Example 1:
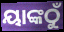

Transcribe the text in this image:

ୟାଙ୍କଠୁଁ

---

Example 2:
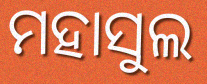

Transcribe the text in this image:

ମହାସୁଲ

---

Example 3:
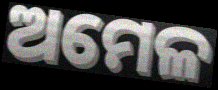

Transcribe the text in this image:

ଅମେଳ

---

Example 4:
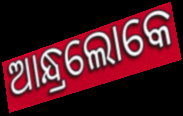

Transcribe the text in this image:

ଆନ୍ଧ୍ରଲୋକେ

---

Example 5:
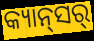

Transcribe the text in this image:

କ୍ୟାନ୍‍ସର୍